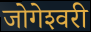
जोगेश्‍वरी